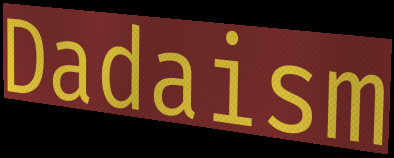
Dadaism